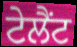
ਟੇਲੈਂਟ